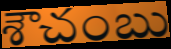
శౌచంబు